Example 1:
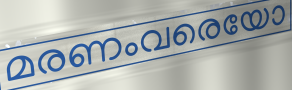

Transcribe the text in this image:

മരണംവരെയോ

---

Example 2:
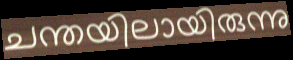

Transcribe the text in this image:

ചന്തയിലായിരുന്നു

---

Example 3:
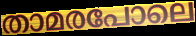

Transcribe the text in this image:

താമരപോലെ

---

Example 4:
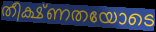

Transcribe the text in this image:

തീക്ഷ്ണതയോടെ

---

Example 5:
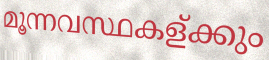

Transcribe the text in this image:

മൂന്നവസ്ഥകള്ക്കും